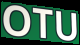
OTU